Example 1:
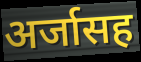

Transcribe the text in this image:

अर्जासह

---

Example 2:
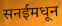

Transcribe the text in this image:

सनईमधून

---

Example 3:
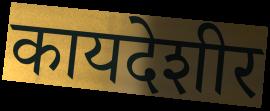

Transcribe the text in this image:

कायदेशीर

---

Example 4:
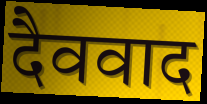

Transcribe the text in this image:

दैववाद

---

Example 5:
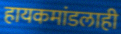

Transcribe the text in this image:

हायकमांडलाही